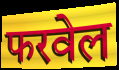
फरवेल